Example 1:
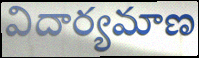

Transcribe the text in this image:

విదార్యమాణ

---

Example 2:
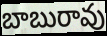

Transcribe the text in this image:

బాబురావు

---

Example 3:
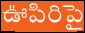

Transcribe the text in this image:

ఊపిరిపై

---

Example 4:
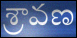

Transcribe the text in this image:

శ్రావణ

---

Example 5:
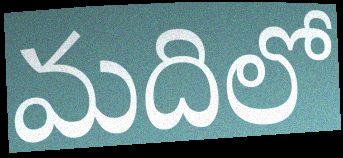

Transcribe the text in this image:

మదిలో